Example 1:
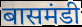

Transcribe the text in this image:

बासमंडी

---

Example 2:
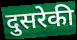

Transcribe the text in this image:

दुसरेकी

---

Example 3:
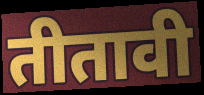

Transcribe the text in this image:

तीतावी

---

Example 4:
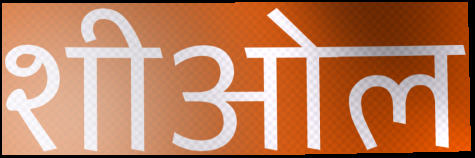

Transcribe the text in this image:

शीओल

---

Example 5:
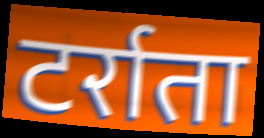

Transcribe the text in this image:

टर्राता